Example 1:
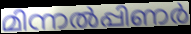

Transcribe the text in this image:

മിന്നൽപ്പിണർ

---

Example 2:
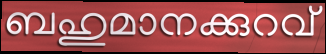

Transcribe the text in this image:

ബഹുമാനക്കുറവ്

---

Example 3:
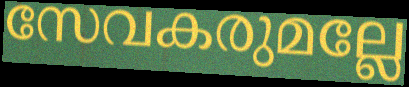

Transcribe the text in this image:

സേവകരുമല്ലേ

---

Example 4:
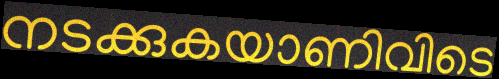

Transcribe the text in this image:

നടക്കുകയാണിവിടെ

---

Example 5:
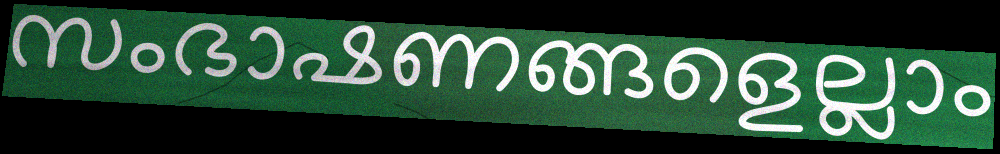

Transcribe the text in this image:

സംഭാഷണങ്ങളെല്ലാം